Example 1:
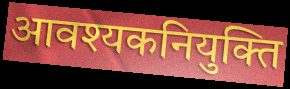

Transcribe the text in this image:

आवश्यकनियुक्ति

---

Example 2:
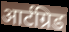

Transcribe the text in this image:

आर्टग्रिड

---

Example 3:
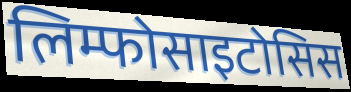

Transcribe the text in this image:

लिम्फोसाइटोसिस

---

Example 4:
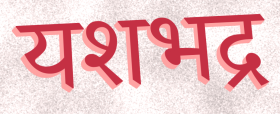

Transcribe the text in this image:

यशभद्र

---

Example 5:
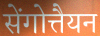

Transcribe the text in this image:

सेंगोत्तैयन